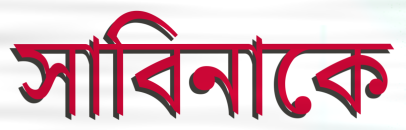
সাবিনাকে